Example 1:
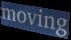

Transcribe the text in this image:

moving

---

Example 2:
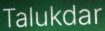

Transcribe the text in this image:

Talukdar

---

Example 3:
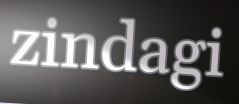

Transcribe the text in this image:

zindagi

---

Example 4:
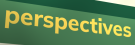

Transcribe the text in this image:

perspectives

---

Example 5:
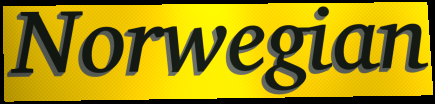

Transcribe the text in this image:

Norwegian